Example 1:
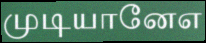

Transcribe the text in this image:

முடியானேஎ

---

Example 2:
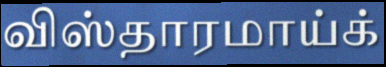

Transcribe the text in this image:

விஸ்தாரமாய்க்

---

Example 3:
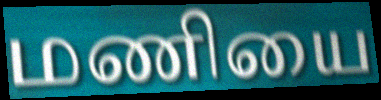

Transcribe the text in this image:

மணியை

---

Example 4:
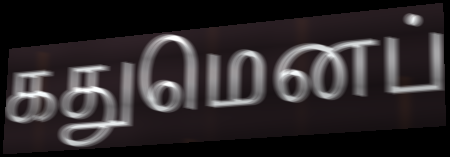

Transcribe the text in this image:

கதுமெனப்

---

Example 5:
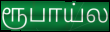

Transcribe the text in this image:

ரூபாய்ல